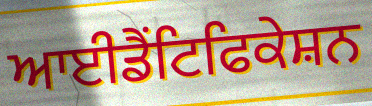
ਆਈਡੈਂਟਿਫਿਕੇਸ਼ਨ